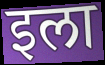
इला